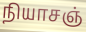
நியாசஞ்